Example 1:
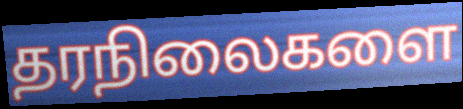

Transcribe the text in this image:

தரநிலைகளை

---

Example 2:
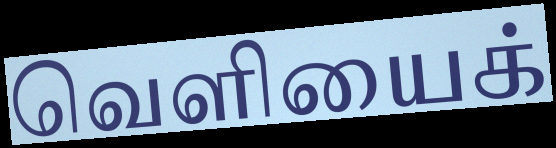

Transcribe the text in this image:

வெளியைக்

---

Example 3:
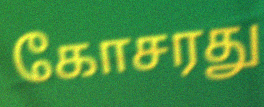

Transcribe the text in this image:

கோசரது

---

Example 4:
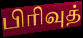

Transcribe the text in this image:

பிரிவுத்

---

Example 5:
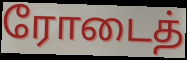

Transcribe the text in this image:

ரோடைத்